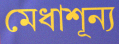
মেধাশূন্য